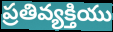
ప్రతివ్యక్తియు